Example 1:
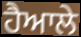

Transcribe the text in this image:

ਹੈਆਲੇ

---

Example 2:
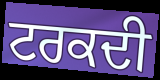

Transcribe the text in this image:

ਟਰਕਦੀ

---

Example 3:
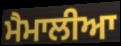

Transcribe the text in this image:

ਮੈਮਾਲੀਆ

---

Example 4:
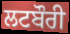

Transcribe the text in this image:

ਲਟਬੌਰੀ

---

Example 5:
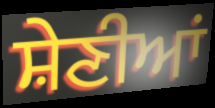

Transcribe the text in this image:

ਸ਼ੇਣੀਆਂ